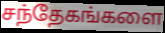
சந்தேகங்களை